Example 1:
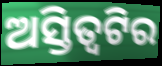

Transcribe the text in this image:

ଅସ୍ତିତ୍ୱଟିର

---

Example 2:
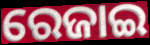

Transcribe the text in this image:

ରେଜାଇ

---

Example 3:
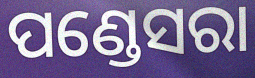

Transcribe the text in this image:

ପଣ୍ଡେସରା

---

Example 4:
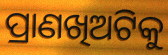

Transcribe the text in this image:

ପ୍ରାଣଖିଅଟିକୁ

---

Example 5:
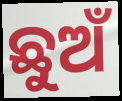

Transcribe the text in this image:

ଛୁଅଁ